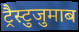
ट्रैस्टुजुमाब